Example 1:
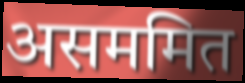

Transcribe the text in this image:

असममित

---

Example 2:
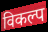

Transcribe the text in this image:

विकल्प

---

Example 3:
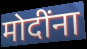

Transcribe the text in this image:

मोदींना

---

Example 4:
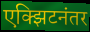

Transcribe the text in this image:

एक्झिटनंतर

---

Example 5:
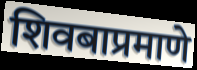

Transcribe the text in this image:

शिवबाप्रमाणे